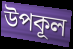
উপকূল